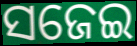
ସଜେଇ